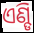
ଏଣ୍ଡି